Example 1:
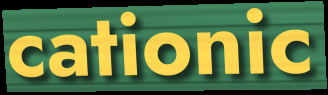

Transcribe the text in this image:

cationic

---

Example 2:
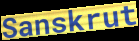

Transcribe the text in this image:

Sanskrut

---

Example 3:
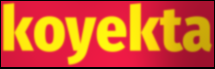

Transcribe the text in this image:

koyekta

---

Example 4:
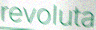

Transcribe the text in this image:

revoluta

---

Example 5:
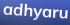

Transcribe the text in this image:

adhyaru